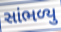
સાંભળ્યુ